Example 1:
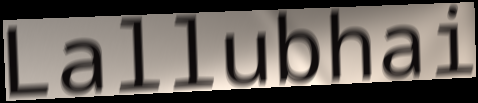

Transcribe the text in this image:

Lallubhai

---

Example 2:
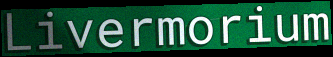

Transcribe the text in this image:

Livermorium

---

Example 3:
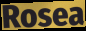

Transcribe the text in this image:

Rosea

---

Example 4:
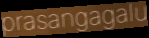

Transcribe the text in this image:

prasangagalu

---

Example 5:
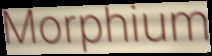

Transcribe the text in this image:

Morphium